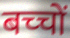
बच्‍चों